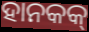
ହାନକକ୍